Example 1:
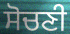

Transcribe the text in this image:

ਸੋਚਣੀ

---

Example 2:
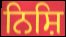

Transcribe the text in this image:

ਨਿਸ਼ਿ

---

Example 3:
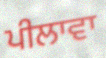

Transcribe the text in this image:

ਪੀਲਾਵਾ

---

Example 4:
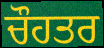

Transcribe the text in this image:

ਚੌਹਤਰ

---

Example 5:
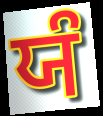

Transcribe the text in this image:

ਯੰ